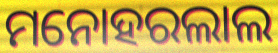
ମନୋହରଲାଲ